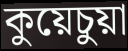
কুয়েচুয়া